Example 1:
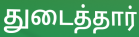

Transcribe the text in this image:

துடைத்தார்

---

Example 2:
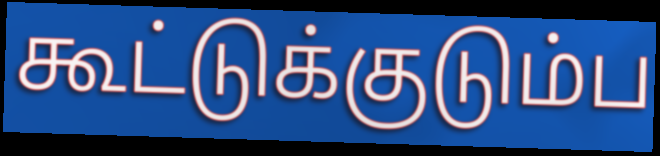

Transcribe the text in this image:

கூட்டுக்குடும்ப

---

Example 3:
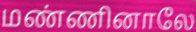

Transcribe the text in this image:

மண்ணினாலே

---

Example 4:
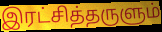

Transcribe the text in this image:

இரட்சித்தருளும்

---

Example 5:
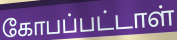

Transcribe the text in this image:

கோபப்பட்டாள்